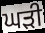
ਘਡ਼ੀ